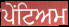
ਪੇਂਟਿਅਮ